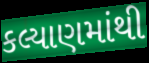
કલ્યાણમાંથી